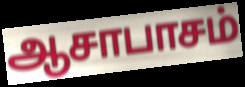
ஆசாபாசம்